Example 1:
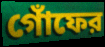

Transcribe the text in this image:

গোঁফের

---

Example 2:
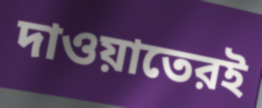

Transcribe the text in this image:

দাওয়াতেরই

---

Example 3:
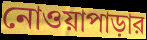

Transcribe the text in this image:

নোওয়াপাড়ার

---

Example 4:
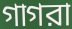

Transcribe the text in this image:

গাগরা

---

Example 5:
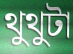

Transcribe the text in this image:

থুথুটা